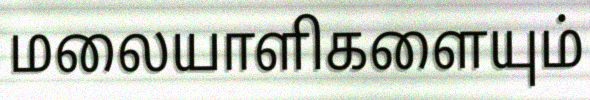
மலையாளிகளையும்